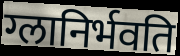
ग्लानिर्भवति